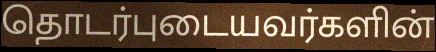
தொடர்புடையவர்களின்